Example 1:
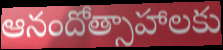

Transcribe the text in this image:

ఆనందోత్సాహాలకు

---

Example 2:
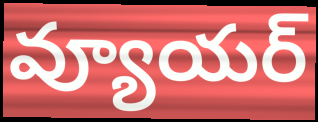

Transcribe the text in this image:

వ్యూయర్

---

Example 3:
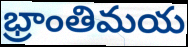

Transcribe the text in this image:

భ్రాంతిమయ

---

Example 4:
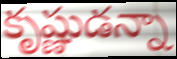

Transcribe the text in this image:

కృష్ణుడన్నా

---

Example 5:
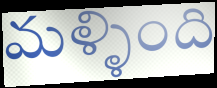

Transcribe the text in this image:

మళ్ళింది